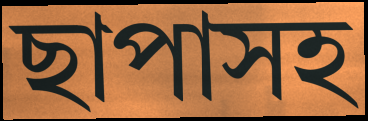
ছাপাসহ